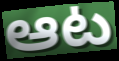
ఆట